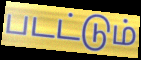
படட்டும்